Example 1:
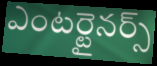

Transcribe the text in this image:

ఎంటర్టైనర్స్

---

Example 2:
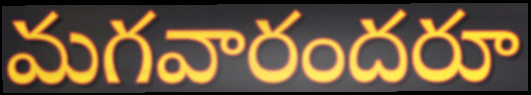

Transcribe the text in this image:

మగవారందరూ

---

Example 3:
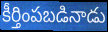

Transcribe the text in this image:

కీర్తింపబడినాడు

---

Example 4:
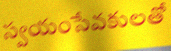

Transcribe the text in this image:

స్వయంసేవకులతో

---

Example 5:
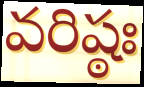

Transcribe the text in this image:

వరిష్ఠః